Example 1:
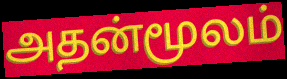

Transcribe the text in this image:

அதன்மூலம்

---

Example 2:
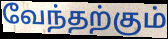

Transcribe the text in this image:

வேந்தற்கும்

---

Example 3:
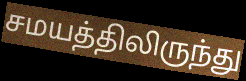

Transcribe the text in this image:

சமயத்திலிருந்து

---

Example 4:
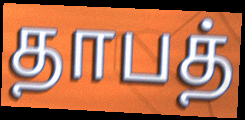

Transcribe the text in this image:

தாபத்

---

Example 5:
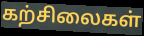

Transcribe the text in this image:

கற்சிலைகள்